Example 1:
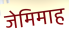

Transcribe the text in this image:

जेमिमाह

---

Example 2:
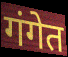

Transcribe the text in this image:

गंगेत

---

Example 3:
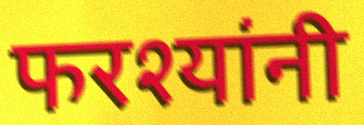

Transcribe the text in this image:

फरश्यांनी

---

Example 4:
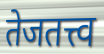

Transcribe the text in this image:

तेजतत्त्व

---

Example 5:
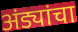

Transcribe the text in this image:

अंड्यांचा